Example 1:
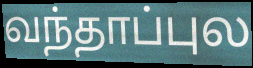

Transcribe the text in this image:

வந்தாப்புல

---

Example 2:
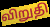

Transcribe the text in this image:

விறுதி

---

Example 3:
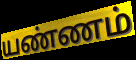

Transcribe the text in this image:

யண்ணம்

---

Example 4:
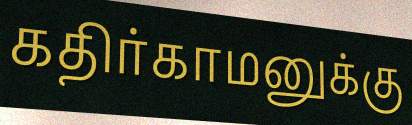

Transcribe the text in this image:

கதிர்காமனுக்கு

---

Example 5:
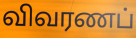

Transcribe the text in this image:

விவரணப்